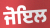
ਜੋਇਲ